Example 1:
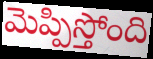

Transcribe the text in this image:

మెప్పిస్తోంది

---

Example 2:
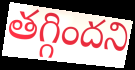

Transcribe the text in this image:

తగ్గిందని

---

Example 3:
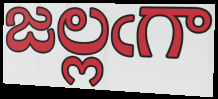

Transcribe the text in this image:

జల్లఁగా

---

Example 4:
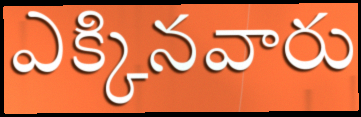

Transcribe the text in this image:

ఎక్కినవారు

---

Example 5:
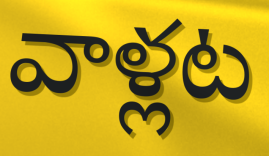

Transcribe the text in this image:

వాళ్లట